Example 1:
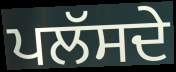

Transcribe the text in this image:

ਪਲੱਸਦੇ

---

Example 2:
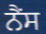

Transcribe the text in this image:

ਨੈਂਸ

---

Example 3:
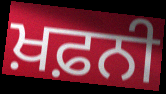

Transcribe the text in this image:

ਖ਼ਫ਼ਨੀ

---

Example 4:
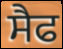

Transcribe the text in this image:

ਸੈਫ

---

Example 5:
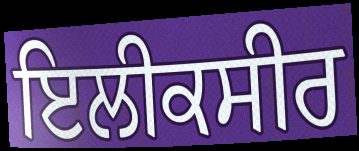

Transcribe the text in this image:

ਇਲੀਕਸੀਰ